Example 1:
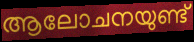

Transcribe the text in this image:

ആലോചനയുണ്ട്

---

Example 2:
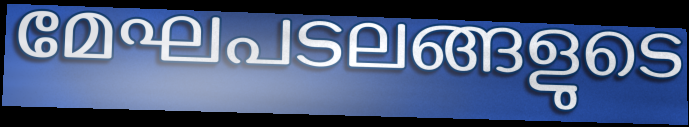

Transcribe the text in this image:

മേഘപടലങ്ങളുടെ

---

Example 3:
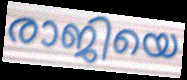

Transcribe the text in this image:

രാജിയെ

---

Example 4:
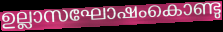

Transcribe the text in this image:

ഉല്ലാസഘോഷംകൊണ്ടു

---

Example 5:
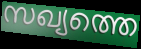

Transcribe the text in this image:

സഖ്യത്തെ